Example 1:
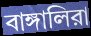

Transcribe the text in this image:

বাঙ্গালিরা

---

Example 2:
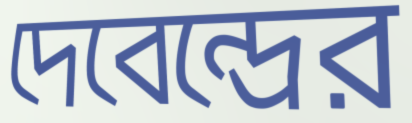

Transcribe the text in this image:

দেবেন্দ্রের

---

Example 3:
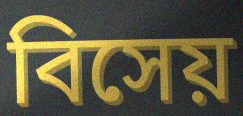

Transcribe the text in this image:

বিসেয়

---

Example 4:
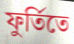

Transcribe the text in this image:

ফুর্তিতে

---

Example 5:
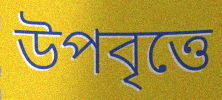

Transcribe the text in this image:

উপবৃত্তে